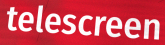
telescreen